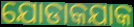
ଯୋଡାକଯାକ